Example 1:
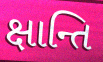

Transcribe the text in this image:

ક્ષાન્તિ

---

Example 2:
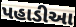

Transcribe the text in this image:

પહાડીઆ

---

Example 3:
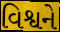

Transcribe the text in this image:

વિશ્વને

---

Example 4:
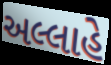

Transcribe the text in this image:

અલ્લાહે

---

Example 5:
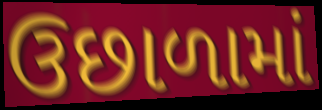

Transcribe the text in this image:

ઉછાળામાં